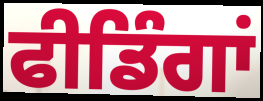
ਫੀਡਿੰਗਾਂ